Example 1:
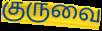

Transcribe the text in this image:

குருவை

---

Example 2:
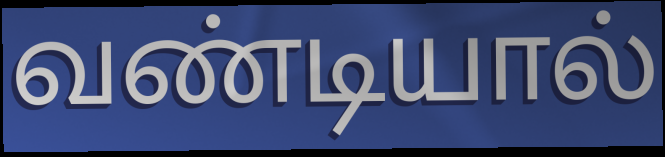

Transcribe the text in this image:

வண்டியால்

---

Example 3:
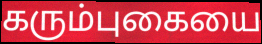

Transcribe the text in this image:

கரும்புகையை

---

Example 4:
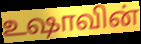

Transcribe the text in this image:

உஷாவின்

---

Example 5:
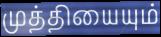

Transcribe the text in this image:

முத்தியையும்